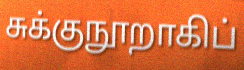
சுக்குநூறாகிப்